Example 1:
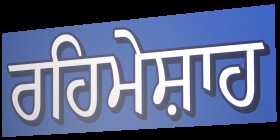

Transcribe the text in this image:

ਰਹਿਮੇਸ਼ਾਹ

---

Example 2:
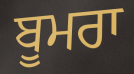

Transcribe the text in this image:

ਬੂਮਰਾ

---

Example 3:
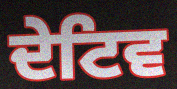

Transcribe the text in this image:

ਦੇਟਿਵ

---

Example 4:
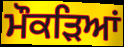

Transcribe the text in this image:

ਮੌਕੜਿਆਂ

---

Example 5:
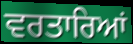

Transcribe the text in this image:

ਵਰਤਾਰਿਆਂ